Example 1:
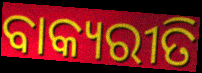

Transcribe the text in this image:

ବାକ୍ୟରୀତି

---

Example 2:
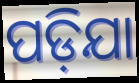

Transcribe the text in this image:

ପଡ଼ିଯା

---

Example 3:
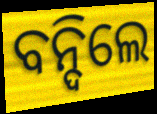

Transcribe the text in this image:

ବନ୍ଦିଲେ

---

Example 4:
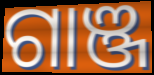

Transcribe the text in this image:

ଗାଞ୍ଜ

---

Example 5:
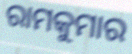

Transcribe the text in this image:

ରାମକୁମାର